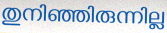
തുനിഞ്ഞിരുന്നില്ല